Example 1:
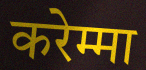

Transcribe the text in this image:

करेम्मा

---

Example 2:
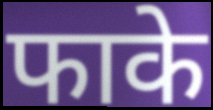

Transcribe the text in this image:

फाके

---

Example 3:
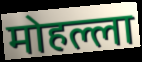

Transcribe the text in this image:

मोहल्ला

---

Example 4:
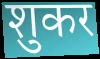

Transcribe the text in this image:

शुकर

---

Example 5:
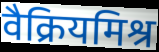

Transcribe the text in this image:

वैक्रियमिश्र